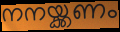
നനയ്ക്കണം